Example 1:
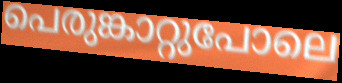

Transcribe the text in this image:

പെരുങ്കാറ്റുപോലെ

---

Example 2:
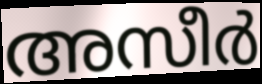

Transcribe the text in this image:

അസീർ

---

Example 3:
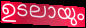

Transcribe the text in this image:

ഉടലായും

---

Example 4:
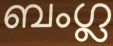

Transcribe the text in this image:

ബംഗ്ല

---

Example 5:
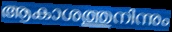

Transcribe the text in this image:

ആകാശത്തുനിന്നും